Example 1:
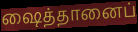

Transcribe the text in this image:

ஷைத்தானைப்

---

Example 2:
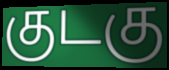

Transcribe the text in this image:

குடகு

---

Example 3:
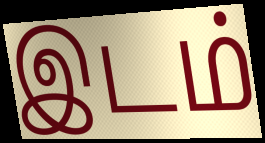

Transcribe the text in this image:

இடம்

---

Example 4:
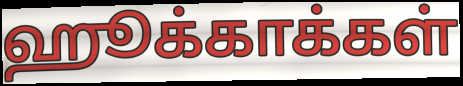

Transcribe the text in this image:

ஹூக்காக்கள்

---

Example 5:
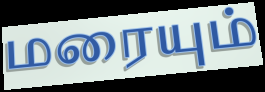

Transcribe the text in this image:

மரையும்